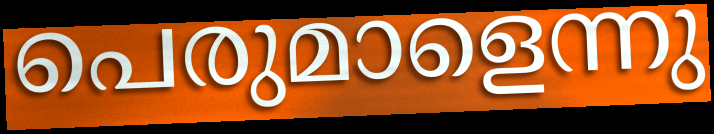
പെരുമാളെന്നു